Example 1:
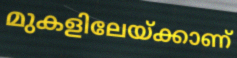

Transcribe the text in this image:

മുകളിലേയ്ക്കാണ്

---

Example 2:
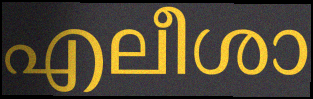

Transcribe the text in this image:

എലീശാ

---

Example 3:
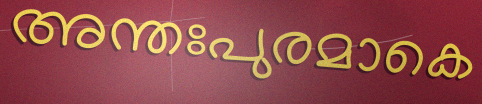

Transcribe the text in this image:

അന്തഃപുരമാകെ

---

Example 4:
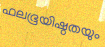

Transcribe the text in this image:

ഫലഭൂയിഷ്ഠതയും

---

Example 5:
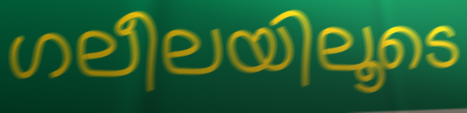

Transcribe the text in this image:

ഗലീലയിലൂടെ